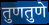
तुणतुणे